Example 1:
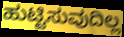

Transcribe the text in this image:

ಹುಟ್ಟಿಸುವುದಿಲ್ಲ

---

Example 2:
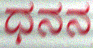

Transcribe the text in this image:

ಧನನ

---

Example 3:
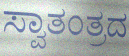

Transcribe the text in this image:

ಸ್ವಾತಂತ್ರದ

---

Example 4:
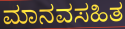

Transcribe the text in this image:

ಮಾನವಸಹಿತ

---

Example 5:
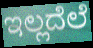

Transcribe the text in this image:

ಇಲ್ಲದೆಲೆ